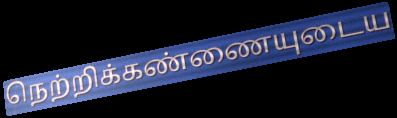
நெற்றிக்கண்ணையுடைய